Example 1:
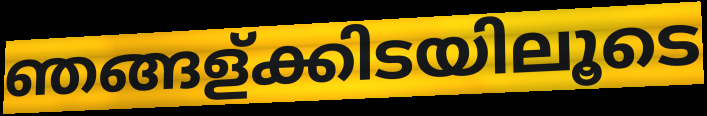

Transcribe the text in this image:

ഞങ്ങള്ക്കിടയിലൂടെ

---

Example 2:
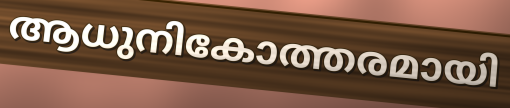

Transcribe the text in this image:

ആധുനികോത്തരമായി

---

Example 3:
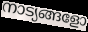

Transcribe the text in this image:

നാട്യങ്ങളോ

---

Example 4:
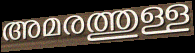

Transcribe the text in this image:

അമരത്തുള്ള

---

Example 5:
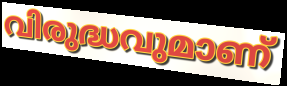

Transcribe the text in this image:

വിരുദ്ധവുമാണ്